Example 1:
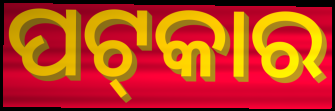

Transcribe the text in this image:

ପଟ୍‌କାର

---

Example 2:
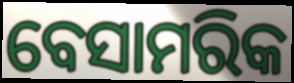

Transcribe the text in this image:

ବେସାମରିକ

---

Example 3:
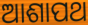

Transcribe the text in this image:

ଆଶାପଥ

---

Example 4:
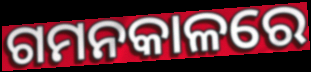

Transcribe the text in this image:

ଗମନକାଳରେ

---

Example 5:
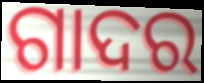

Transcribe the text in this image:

ଗାଦର